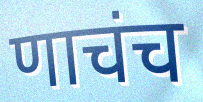
णाचंच